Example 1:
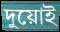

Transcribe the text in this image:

দুয়োই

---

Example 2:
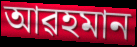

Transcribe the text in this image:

আৱহমান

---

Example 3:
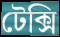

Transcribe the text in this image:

টেক্সি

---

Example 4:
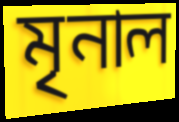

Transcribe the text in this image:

মৃনাল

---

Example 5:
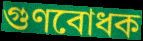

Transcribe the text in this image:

গুণবোধক